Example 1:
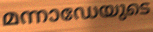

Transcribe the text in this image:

മന്നാഡേയുടെ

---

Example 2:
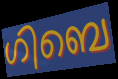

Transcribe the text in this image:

ഗിബെ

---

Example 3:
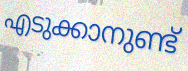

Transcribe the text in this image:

എടുക്കാനുണ്ട്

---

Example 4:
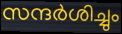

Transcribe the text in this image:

സന്ദർശിച്ചും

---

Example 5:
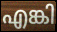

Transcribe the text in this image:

എങ്കി